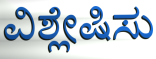
ವಿಶ್ಲೇಷಿಸು